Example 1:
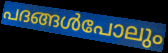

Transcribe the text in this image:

പദങ്ങൾപോലും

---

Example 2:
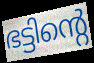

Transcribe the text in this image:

ഭട്ടിന്റെ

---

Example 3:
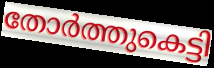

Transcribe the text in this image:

തോർത്തുകെട്ടി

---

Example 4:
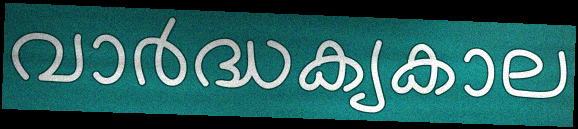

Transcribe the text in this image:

വാർദ്ധക്യകാല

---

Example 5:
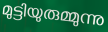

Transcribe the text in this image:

മുട്ടിയുരുമ്മുന്നു